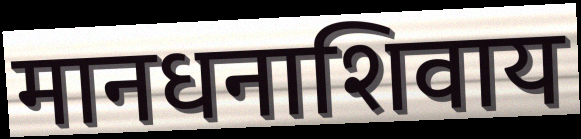
मानधनाशिवाय